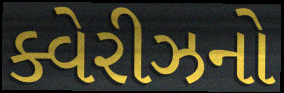
ક્વેરીઝનો